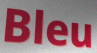
Bleu